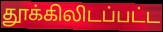
தூக்கிலிடப்பட்ட